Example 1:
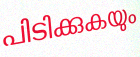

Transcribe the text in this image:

പിടിക്കുകയും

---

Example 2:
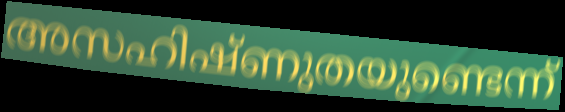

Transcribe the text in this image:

അസഹിഷ്ണുതയുണ്ടെന്ന്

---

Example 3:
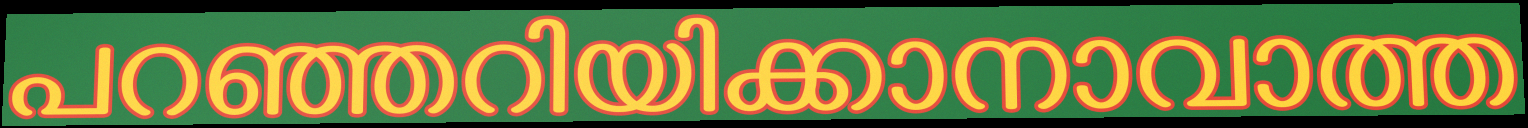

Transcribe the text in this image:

പറഞ്ഞറിയിക്കാനാവാത്ത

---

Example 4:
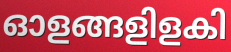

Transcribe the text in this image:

ഓളങ്ങളിളകി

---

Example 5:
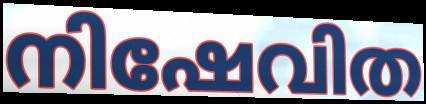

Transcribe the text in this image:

നിഷേവിത